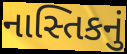
નાસ્તિકનું